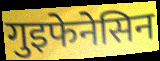
गुइफेनेसिन